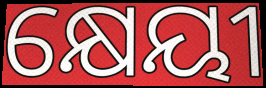
କ୍ଷେୟୀ